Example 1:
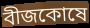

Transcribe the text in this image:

বীজকোষে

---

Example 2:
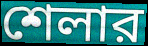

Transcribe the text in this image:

শেলার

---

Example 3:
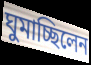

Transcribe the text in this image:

ঘুমাচ্ছিলেন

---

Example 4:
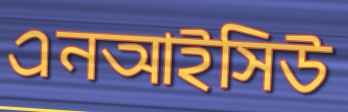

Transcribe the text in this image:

এনআইসিউ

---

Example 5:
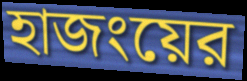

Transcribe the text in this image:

হাজংয়ের